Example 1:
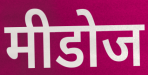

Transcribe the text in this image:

मीडोज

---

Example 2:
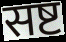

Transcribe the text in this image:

सष्ट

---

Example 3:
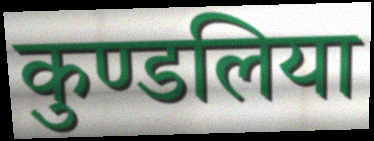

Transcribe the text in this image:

कुण्डलिया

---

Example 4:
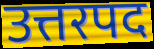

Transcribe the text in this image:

उत्तरपद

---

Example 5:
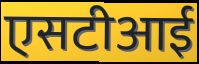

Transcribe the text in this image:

एसटीआई